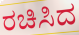
ರಚಿಸಿದ